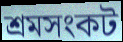
শ্রমসংকট